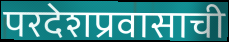
परदेशप्रवासाची